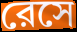
রেসে